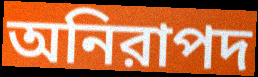
অনিরাপদ